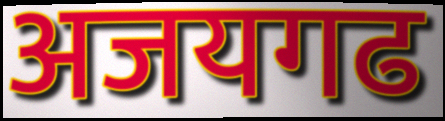
अजयगढ